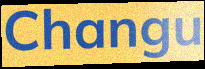
Changu